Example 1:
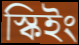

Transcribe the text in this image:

স্কিইং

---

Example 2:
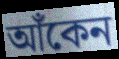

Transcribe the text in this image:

আঁকেন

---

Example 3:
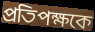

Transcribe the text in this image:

প্রতিপক্ষকে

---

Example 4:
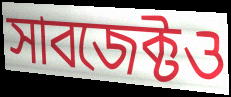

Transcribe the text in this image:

সাবজেক্টও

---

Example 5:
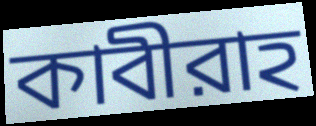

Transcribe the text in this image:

কাবীরাহ